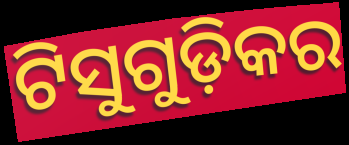
ଟିସୁଗୁଡ଼ିକର